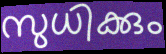
സുധിക്കും